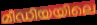
മീഡിയയിലെ